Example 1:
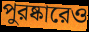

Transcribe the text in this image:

পুরষ্কারেও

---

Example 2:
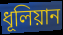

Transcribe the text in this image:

ধূলিয়ান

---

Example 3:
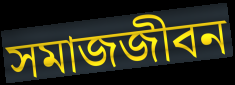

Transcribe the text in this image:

সমাজজীবন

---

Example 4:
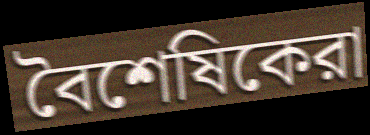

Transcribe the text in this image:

বৈশেষিকেরা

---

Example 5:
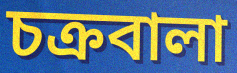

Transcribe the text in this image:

চক্রবালা